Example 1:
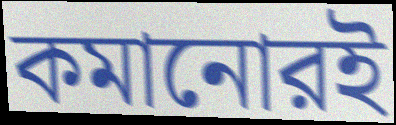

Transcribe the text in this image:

কমানোরই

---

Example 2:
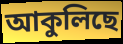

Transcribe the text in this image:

আকুলিছে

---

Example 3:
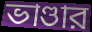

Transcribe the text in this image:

ভাণ্ডার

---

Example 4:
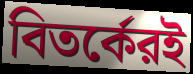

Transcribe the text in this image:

বিতর্কেরই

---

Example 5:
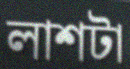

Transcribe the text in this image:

লাশটা